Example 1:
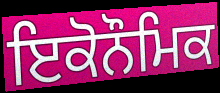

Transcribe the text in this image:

ਇਕੋਨੌਮਿਕ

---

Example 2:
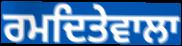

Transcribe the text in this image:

ਰਮਦਿਤੇਵਾਲਾ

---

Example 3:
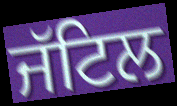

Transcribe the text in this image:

ਜੱਟਿਲ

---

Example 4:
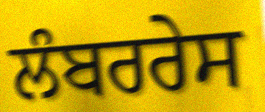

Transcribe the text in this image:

ਲੰਬਰਰੇਸ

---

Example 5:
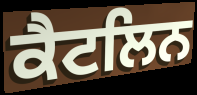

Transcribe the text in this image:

ਕੈਟਲਿਨ